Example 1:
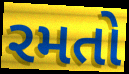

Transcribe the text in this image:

રમતો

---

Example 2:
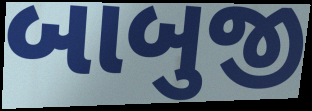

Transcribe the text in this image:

બાબુજી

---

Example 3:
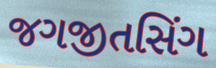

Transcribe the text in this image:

જગજીતસિંગ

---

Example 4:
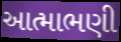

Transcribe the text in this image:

આત્માભણી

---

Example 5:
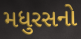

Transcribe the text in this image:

મધુરસનો